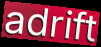
adrift